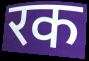
रक